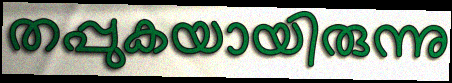
തപ്പുകയായിരുന്നു